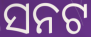
ସନଟ